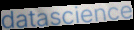
datascience